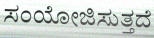
ಸಂಯೋಜಿಸುತ್ತದೆ